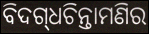
ବିଦଗ୍‌ଧଚିନ୍ତାମଣିର